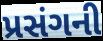
પ્રસંગની